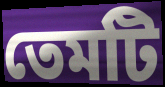
তেমটি